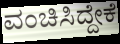
ವಂಚಿಸಿದ್ದೇಕೆ